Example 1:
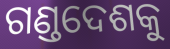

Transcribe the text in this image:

ଗଣ୍ଡଦେଶକୁ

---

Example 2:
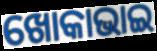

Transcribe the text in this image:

ଖୋକାଭାଇ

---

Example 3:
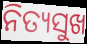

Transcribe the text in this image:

ନିତ୍ୟସୁଖ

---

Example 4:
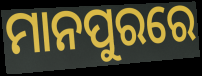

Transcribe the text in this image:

ମାନପୁରରେ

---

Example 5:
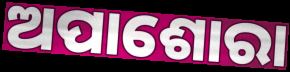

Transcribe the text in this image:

ଅପାଶୋରା